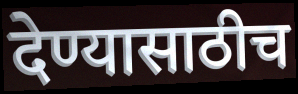
देण्यासाठीच